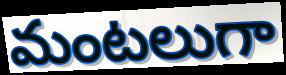
మంటలుగా